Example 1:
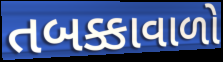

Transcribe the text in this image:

તબક્કાવાળો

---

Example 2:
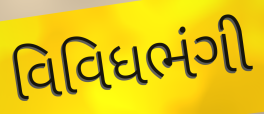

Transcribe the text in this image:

વિવિધભંગી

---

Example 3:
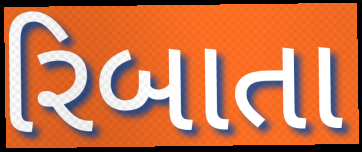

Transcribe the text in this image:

રિબાતા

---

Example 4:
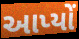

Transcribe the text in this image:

આપ્યોં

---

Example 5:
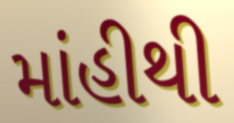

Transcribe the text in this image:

માંહીથી